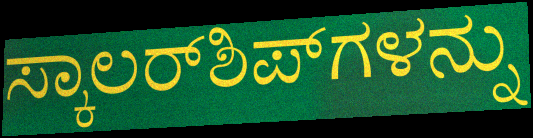
ಸ್ಕಾಲರ್‌ಶಿಪ್‌ಗಳನ್ನು